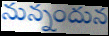
నున్నందున